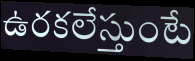
ఉరకలేస్తుంటే